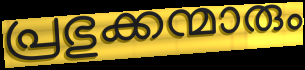
പ്രഭുക്കന്മാരും